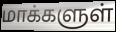
மாக்களுள்